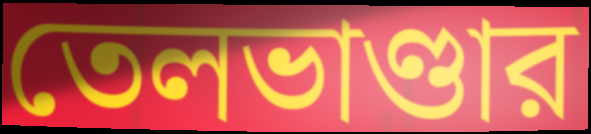
তেলভাণ্ডার